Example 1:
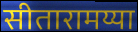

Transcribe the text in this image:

सीतारामय्या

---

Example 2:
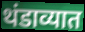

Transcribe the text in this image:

थंडाव्यात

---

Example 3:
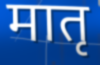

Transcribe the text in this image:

मातृ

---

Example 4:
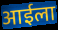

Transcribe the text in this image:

आईला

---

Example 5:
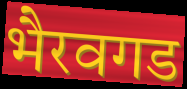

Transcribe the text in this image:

भैरवगड